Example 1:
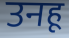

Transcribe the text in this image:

उनहू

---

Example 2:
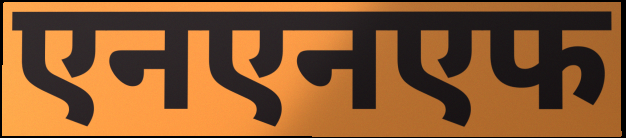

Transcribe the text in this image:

एनएनएफ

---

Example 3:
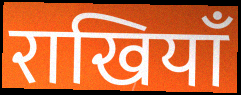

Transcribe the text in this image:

राखियाँ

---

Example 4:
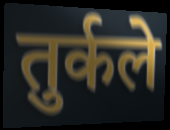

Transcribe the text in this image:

तुर्कले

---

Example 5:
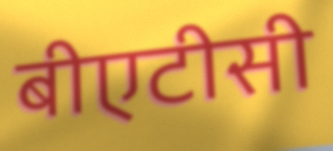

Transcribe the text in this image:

बीएटीसी